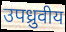
उपध्रुवीय